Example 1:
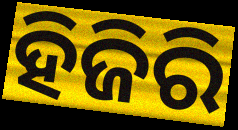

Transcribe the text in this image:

ହିଜିରି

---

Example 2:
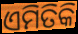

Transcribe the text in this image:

ଏମିତିକି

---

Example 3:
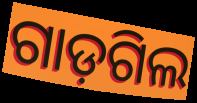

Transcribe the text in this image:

ଗାଡ଼ଗିଲ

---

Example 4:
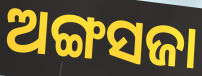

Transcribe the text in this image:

ଅଙ୍ଗସଜା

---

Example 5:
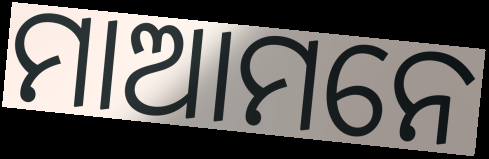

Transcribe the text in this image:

ମାଆମନେ